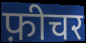
फ़ीचर